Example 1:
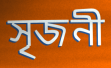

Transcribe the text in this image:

সৃজনী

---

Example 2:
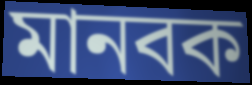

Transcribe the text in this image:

মানবক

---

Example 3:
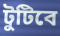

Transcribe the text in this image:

টুটিবে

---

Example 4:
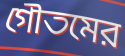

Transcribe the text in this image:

গৌতমের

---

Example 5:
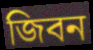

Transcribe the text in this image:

জিবন